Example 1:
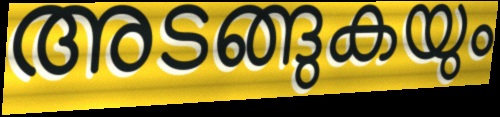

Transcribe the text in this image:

അടങ്ങുകയും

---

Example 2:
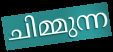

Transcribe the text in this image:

ചിമ്മുന്ന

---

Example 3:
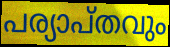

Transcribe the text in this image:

പര്യാപ്തവും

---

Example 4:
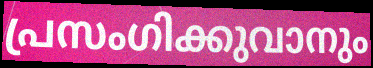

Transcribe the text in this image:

പ്രസംഗിക്കുവാനും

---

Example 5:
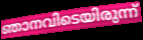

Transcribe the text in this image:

ഞാനവിടെയിരുന്ന്